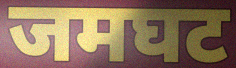
जमघट